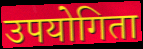
उपयोगिता